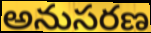
అనుసరణ